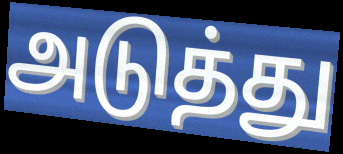
அடுத்து